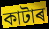
কাটাৰ